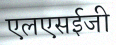
एलएसईजी